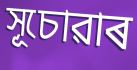
সূচোৱাৰ